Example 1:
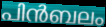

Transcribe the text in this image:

പിൻബലം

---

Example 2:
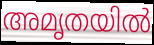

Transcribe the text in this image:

അമൃതയിൽ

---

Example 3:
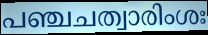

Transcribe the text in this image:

പഞ്ചചത്വാരിംശഃ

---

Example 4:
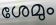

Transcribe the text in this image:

ശേമും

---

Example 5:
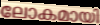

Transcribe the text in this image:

ലോകമായി